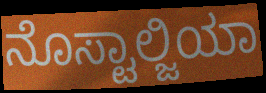
ನೊಸ್ಟಾಲ್ಜಿಯಾ